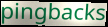
pingbacks